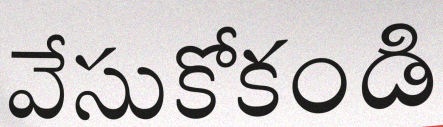
వేసుకోకండి